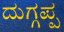
ದುಗ್ಗಪ್ಪ